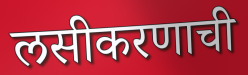
लसीकरणाची